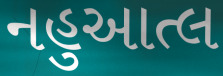
નહુઆત્લ